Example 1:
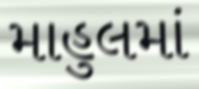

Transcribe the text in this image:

માહુલમાં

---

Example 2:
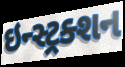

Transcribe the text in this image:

ઇન્સ્ટ્રક્શન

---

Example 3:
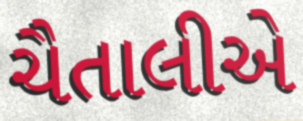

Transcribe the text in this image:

ચૈતાલીએ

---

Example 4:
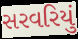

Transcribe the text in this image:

સરવરિયું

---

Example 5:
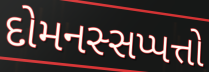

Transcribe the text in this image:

દોમનસ્સપ્પત્તો